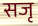
सजृ